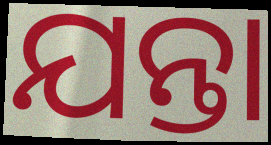
ଯନ୍ତା